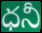
ధనీ